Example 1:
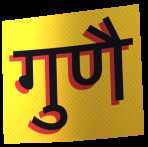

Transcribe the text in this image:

गुणै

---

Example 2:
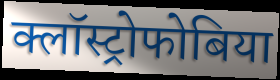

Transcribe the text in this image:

क्लॉस्ट्रोफोबिया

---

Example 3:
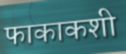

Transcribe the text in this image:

फाकाकशी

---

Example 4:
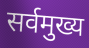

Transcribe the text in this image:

सर्वमुख्य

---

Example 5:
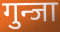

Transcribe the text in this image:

गुन्जा